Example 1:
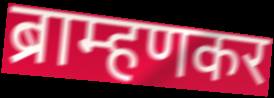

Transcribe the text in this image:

ब्राम्हणकर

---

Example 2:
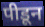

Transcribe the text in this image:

पीडून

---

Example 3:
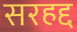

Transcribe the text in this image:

सरहद्द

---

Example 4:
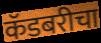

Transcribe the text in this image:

कॅडबरीचा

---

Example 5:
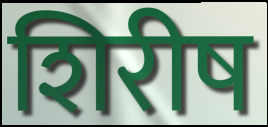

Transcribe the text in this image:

शिरीष